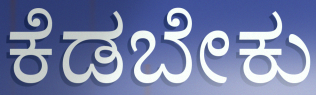
ಕೆಡಬೇಕು